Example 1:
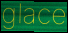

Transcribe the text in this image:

glace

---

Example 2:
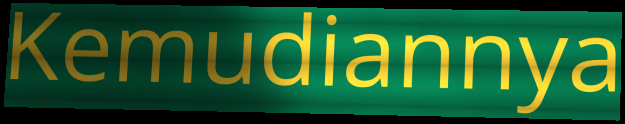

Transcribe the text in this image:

Kemudiannya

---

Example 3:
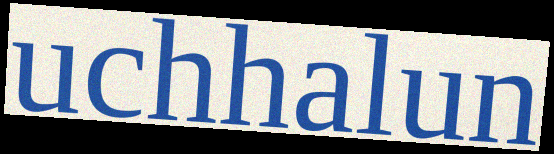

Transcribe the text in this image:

uchhalun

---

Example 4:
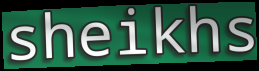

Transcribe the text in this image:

sheikhs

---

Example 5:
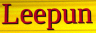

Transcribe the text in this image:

Leepun